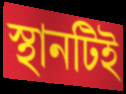
স্থানটিই